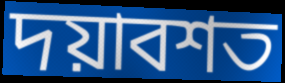
দয়াবশত